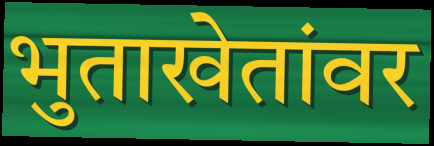
भुताखेतांवर